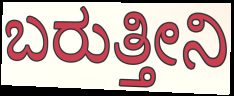
ಬರುತ್ತೀನಿ